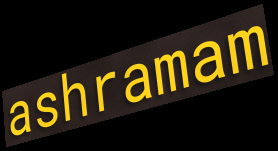
ashramam